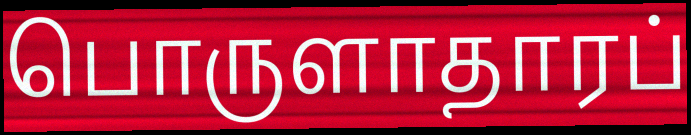
பொருளாதாரப்